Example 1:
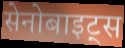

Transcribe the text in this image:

सेनोबाइट्स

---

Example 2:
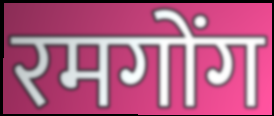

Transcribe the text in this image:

रमगोंग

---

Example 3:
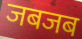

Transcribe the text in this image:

जबजब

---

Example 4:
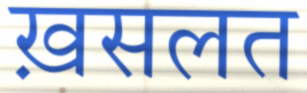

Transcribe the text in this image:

ख़सलत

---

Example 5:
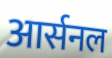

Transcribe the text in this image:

आर्सनल